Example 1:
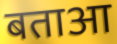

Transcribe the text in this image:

बताआ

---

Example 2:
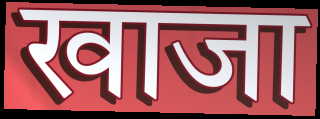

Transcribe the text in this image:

खाजा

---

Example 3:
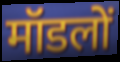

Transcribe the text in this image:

मॉडलों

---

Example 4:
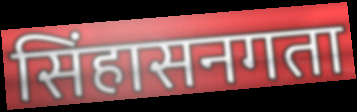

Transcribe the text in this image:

सिंहासनगता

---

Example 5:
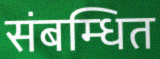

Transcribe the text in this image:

संबम्धित